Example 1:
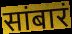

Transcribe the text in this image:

सांबारं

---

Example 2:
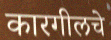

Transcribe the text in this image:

कारगीलचे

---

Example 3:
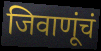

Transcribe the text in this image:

जिवाणूंचं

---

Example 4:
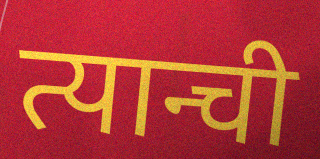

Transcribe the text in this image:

त्यान्ची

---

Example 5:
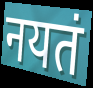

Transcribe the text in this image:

नयतं